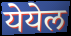
येयेल